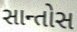
સાન્તોસ